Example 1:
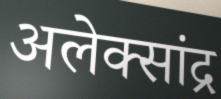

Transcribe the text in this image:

अलेक्सांद्र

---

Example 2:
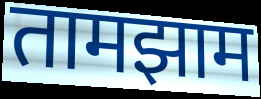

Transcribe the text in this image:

तामझाम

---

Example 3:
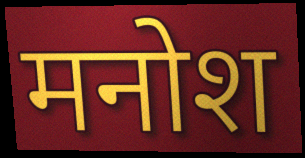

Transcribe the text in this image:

मनोश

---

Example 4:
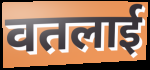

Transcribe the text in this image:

वतलाई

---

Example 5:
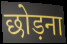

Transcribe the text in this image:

छोड़ना